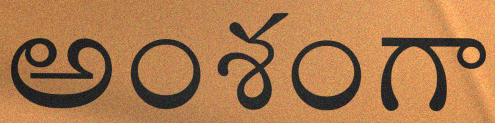
అంశంగా